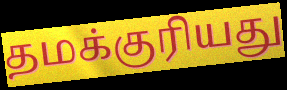
தமக்குரியது